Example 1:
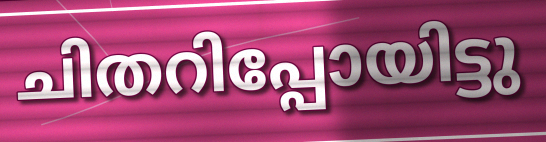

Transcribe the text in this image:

ചിതറിപ്പോയിട്ടു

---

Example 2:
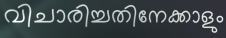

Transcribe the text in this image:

വിചാരിച്ചതിനേക്കാളും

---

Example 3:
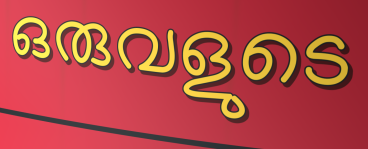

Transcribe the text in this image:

ഒരുവളുടെ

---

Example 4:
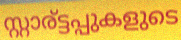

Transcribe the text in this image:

സ്റ്റാര്ട്ടപ്പുകളുടെ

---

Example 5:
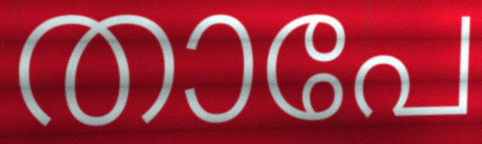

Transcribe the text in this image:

താപേ